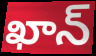
ఖాన్